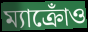
ম্যাক্রোঁও